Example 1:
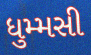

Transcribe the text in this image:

ધુમ્મસી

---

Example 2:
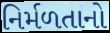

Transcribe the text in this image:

નિર્મળતાનો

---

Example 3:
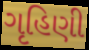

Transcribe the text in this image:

ગૃહિણી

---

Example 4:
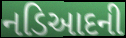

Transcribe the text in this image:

નડિઆદની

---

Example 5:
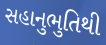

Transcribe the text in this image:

સહાનુભુતિથી